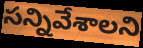
సన్నివేశాలని